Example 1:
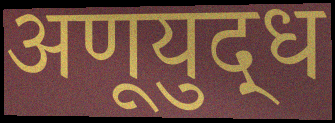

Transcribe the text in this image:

अणूयुद्ध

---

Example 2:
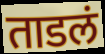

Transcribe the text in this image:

ताडलं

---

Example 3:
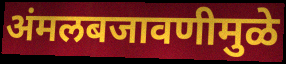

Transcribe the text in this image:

अंमलबजावणीमुळे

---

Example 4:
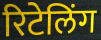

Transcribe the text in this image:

रिटेलिंग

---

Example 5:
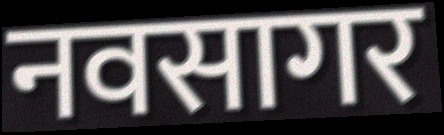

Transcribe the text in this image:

नवसागर